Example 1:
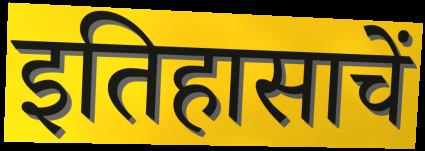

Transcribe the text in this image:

इतिहासाचें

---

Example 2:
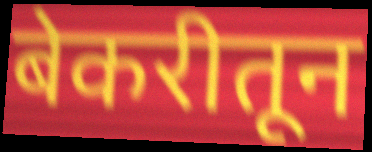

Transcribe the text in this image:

बेकरीतून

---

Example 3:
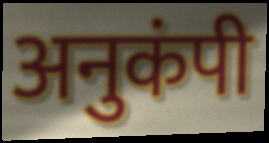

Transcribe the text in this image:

अनुकंपी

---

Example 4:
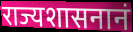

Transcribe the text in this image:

राज्यशासनानं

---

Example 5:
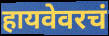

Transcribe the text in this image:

हायवेवरचं